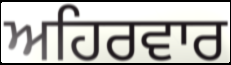
ਅਹਿਰਵਾਰ